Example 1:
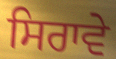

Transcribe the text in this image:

ਸਿਰਾਵੇ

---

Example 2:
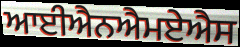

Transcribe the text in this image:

ਆਈਐਨਐਮਏਐਸ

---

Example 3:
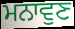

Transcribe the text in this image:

ਮਨਾਵੁਣ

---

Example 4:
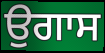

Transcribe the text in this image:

ਉਗਾਸ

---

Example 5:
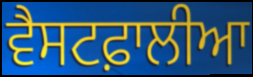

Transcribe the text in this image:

ਵੈਸਟਫ਼ਾਲੀਆ